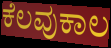
ಕೆಲವುಕಾಲ